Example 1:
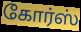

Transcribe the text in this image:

கோர்ஸ்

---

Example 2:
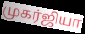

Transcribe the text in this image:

முகர்ஜியா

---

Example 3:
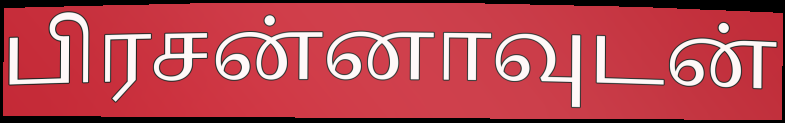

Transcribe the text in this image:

பிரசன்னாவுடன்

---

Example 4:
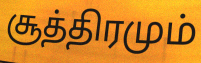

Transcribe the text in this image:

சூத்திரமும்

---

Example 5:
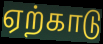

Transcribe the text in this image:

ஏற்காடு